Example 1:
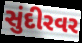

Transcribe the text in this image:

સુંદીરવર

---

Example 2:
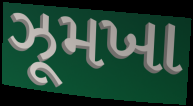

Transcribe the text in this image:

ઝૂમખા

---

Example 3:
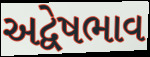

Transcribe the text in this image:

અદ્વેષભાવ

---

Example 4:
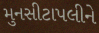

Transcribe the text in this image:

મુનસીટાપલીને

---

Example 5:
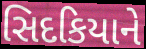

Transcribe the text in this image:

સિદકિયાને